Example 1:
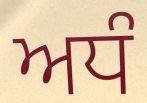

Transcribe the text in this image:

ਅਧੰ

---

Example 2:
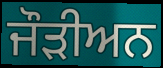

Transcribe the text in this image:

ਜੌੜੀਅਨ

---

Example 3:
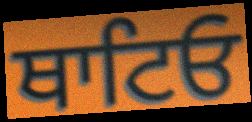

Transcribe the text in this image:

ਥਾਟਿਓ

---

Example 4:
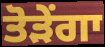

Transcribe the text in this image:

ਤੋੜੇਂਗਾ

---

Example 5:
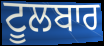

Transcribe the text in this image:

ਟੂਲਬਾਰ